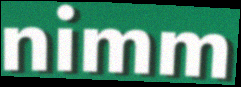
nimm